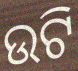
ଉଟି